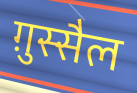
ग़ुस्सैल